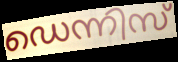
ഡെന്നിസ്